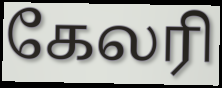
கேலரி